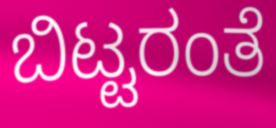
ಬಿಟ್ಟರಂತೆ